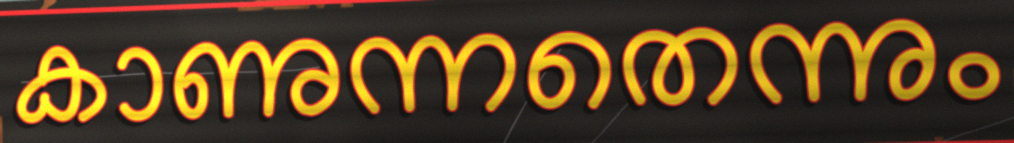
കാണുന്നതെന്നും